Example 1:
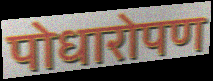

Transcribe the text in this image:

पोधारोपण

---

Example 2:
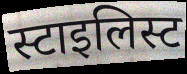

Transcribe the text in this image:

स्टाइलिस्ट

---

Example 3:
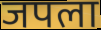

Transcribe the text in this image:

जपला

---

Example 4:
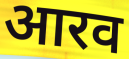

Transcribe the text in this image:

आरव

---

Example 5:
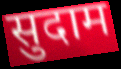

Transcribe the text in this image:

सुदाम